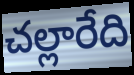
చల్లారేది